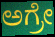
ಅಗ್ರೇ